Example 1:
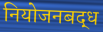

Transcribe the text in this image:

नियोजनबद्ध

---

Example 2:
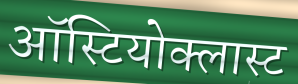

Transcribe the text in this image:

ऑस्टियोक्लास्ट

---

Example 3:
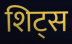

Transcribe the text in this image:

शिट्स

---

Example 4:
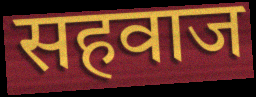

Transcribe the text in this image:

सहवाज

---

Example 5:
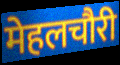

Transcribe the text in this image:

मेहलचौरी